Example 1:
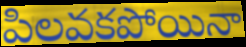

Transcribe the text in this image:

పిలవకపోయినా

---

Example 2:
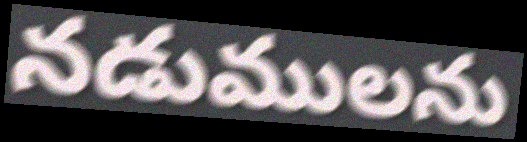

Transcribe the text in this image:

నడుములను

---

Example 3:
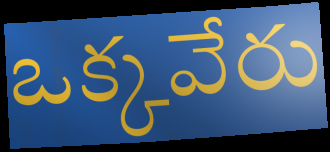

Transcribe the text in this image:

ఒక్కవేరు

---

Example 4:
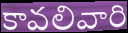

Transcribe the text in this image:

కావలివారి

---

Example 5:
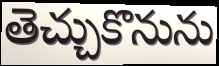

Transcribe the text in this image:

తెచ్చుకొనును